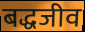
बद्धजीव